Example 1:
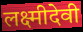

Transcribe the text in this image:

लक्ष्मीदेवी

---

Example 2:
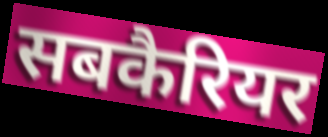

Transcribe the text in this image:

सबकैरियर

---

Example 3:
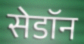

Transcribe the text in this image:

सेडॉन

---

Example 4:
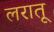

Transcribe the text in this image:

लरातू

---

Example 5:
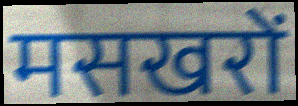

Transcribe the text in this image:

मसखरों